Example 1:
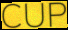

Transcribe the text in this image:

CUP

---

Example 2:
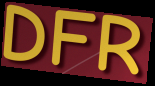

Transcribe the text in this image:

DFR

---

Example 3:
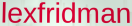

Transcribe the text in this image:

lexfridman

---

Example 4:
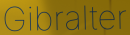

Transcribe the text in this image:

Gibralter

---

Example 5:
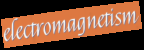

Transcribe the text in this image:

electromagnetism